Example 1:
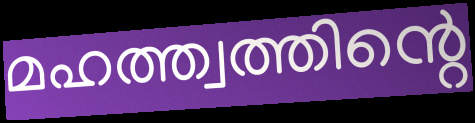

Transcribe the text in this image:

മഹത്ത്വത്തിന്റെ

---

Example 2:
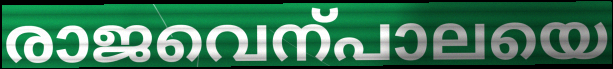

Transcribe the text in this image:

രാജവെന്പാലയെ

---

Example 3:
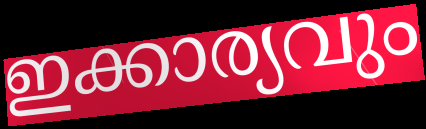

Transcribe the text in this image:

ഇക്കാര്യവും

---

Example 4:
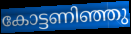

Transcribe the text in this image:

കോട്ടണിഞ്ഞു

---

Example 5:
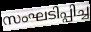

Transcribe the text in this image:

സംഘടിപ്പിച്ച